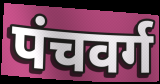
पंचवर्ग